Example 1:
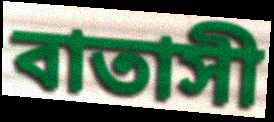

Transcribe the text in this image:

বাতাসী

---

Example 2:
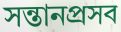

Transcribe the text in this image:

সন্তানপ্রসব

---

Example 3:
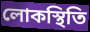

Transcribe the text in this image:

লোকস্থিতি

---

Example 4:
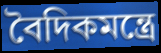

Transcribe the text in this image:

বৈদিকমন্ত্রে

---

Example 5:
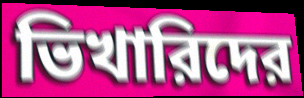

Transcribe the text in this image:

ভিখারিদের